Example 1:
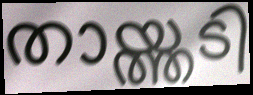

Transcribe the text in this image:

തായ്ത്തടി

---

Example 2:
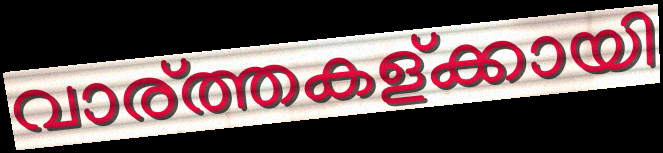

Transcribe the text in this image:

വാര്ത്തകള്ക്കായി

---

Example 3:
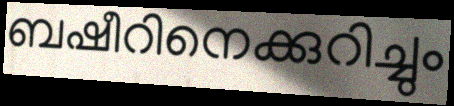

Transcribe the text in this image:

ബഷീറിനെക്കുറിച്ചും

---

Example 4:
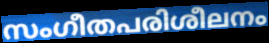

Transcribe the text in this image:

സംഗീതപരിശീലനം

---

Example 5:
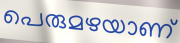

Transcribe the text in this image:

പെരുമഴയാണ്